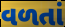
વળતાં